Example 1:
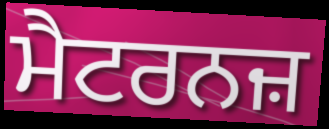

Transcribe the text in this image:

ਮੈਟਰਨਜ਼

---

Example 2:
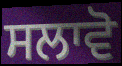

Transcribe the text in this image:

ਸਲਾਵੋ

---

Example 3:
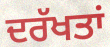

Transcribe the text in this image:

ਦਰੱਖਤਾਂ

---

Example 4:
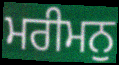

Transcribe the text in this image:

ਮਰੀਮਨੁ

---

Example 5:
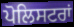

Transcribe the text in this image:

ਪੋਲਿਸਟਰਾਂ